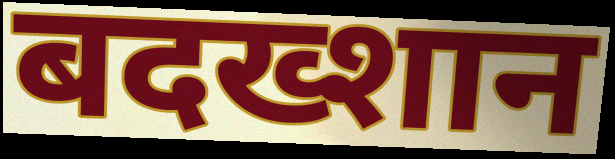
बदख्शान